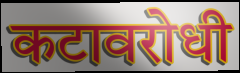
कटावरोधी